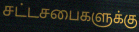
சட்டசபைகளுக்கு